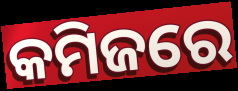
କମିଜରେ